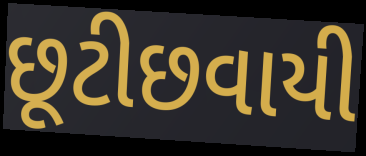
છૂટીછવાયી